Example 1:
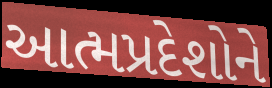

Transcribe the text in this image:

આત્મપ્રદેશોને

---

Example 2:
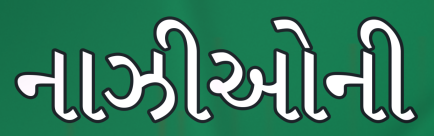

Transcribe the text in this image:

નાઝીઓની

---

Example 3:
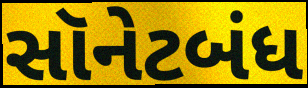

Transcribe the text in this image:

સૉનેટબંધ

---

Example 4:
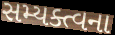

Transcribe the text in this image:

સમ્યક્ત્વના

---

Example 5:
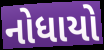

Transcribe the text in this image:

નોધાયો